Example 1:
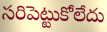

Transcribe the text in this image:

సరిపెట్టుకోలేదు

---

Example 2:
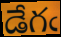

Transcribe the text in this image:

డేగఁ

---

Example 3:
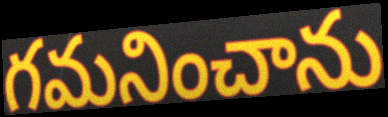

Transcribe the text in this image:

గమనించాను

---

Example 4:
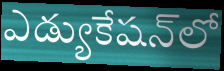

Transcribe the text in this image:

ఎడ్యుకేషన్‌లో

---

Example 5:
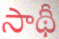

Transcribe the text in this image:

సాథీ